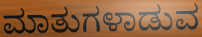
ಮಾತುಗಳಾಡುವ